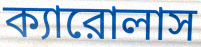
ক্যারোলাস